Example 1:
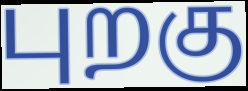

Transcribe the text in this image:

புறகு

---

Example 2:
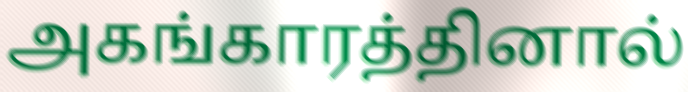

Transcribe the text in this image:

அகங்காரத்தினால்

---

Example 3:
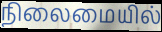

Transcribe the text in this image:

நிலைமையில்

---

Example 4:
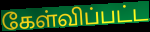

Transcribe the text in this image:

கேள்விப்பட்ட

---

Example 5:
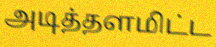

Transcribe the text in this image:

அடித்தளமிட்ட